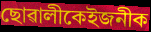
ছোৱালীকেইজনীক